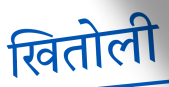
खितोली